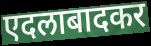
एदलाबादकर